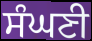
ਸੰਘਣੀ